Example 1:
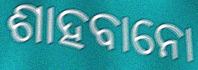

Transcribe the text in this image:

ଶାହବାନୋ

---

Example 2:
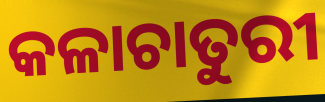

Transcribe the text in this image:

କଳାଚାତୁରୀ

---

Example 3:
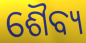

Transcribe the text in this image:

ଶୈବ୍ୟ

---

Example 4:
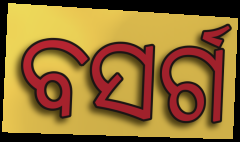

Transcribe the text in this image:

ବସର୍ଗ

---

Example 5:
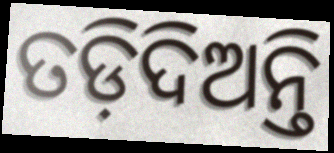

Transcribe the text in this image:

ତଡ଼ିଦିଅନ୍ତି